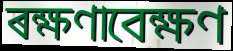
ৰক্ষণাবেক্ষণ